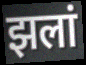
झलां